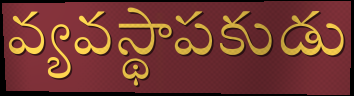
వ్యవస్థాపకుడు